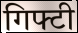
गिफ्टी